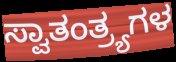
ಸ್ವಾತಂತ್ರ್ಯಗಳ